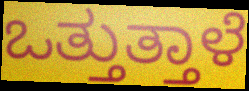
ಒತ್ತುತ್ತಾಳೆ